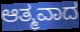
ಆತ್ಮವಾದ